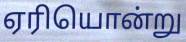
ஏரியொன்று